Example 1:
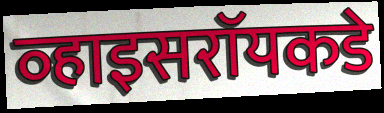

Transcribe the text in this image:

व्हाइसरॉयकडे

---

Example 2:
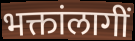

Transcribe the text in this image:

भक्तांलागीं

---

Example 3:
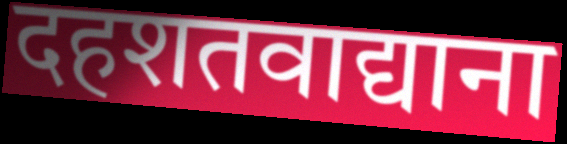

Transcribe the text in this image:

दहशतवाद्याना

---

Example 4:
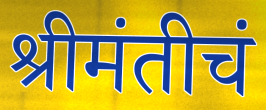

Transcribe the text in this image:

श्रीमंतीचं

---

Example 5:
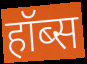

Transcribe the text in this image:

हॉब्स